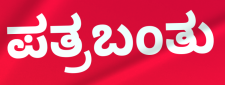
ಪತ್ರಬಂತು